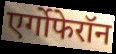
एर्गोफेरॉन